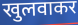
खुलवाकर